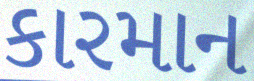
કારમાન